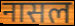
नासल